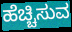
ಹೆಚ್ಚಿಸುವ